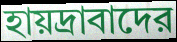
হায়দ্রাবাদের